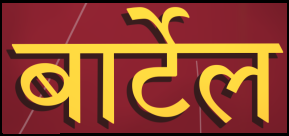
बार्टेल